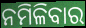
ନମିଳିବାର